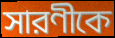
সারণীকে